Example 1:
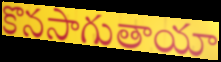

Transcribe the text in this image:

కొనసాగుతాయా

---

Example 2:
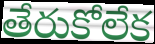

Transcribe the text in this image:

తేరుకోలేక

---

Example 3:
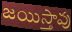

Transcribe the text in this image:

జయిస్తావు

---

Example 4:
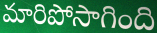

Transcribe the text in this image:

మారిపోసాగింది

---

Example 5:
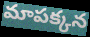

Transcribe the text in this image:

మాపక్కన